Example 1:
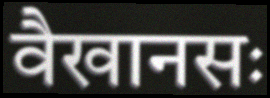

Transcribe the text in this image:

वैखानसः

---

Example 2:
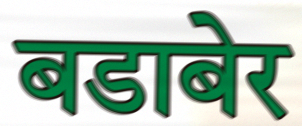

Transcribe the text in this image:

बडाबेर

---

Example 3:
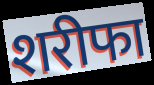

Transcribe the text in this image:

शरीफा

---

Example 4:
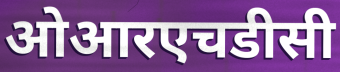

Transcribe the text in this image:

ओआरएचडीसी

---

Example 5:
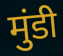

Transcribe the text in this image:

मुंडी